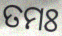
ତମଃ